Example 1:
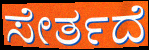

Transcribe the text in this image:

ಸೇರ್ತದೆ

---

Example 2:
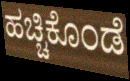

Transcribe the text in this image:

ಹಚ್ಚಿಕೊಂಡೆ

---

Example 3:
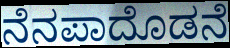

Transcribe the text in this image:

ನೆನಪಾದೊಡನೆ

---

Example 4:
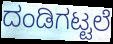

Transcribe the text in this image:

ದಂಡಿಗಟ್ಟಲೆ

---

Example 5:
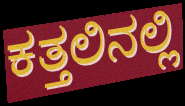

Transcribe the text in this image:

ಕತ್ತಲಿನಲ್ಲಿ